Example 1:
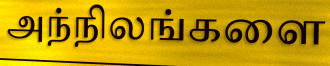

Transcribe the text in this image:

அந்நிலங்களை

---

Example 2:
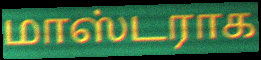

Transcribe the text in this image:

மாஸ்டராக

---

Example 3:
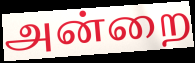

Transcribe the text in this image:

அன்றை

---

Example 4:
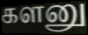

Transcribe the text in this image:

களனு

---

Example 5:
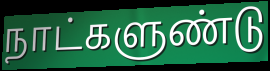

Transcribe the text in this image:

நாட்களுண்டு